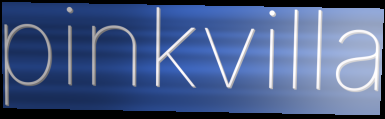
pinkvilla